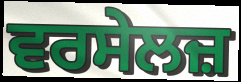
ਵਰਸੇਲਜ਼